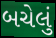
બચેલું